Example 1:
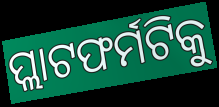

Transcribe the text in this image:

ପ୍ଲାଟଫର୍ମଟିକୁ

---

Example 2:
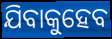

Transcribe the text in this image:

ଯିବାକୁହେବ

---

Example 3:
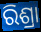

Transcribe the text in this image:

ରିଶ୍ରା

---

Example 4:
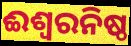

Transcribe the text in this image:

ଈଶ୍ୱରନିଷ୍ଠ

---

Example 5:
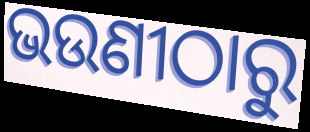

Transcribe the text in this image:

ଭଉଣୀଠାରୁ